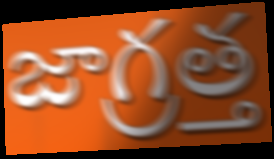
జాగ్రత్త